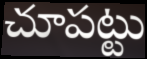
చూపట్టు